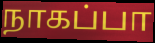
நாகப்பா